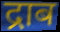
द्राब